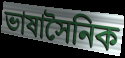
ভাষাসৈনিক